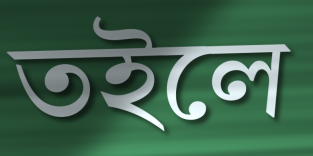
তইলে